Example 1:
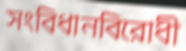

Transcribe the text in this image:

সংবিধানবিরোধী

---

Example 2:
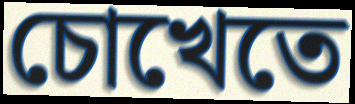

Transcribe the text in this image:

চোখেতে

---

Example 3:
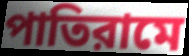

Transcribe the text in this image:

পাতিরামে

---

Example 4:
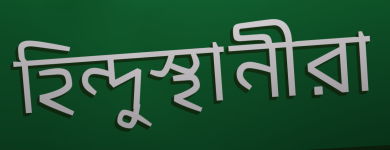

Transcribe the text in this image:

হিন্দুস্থানীরা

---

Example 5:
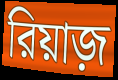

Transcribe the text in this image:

রিয়াজ়